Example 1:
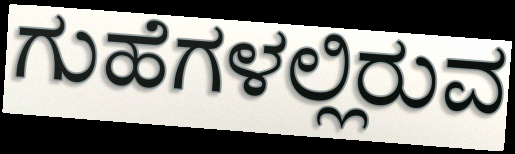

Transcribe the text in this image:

ಗುಹೆಗಳಲ್ಲಿರುವ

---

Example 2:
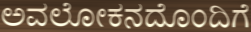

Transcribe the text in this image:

ಅವಲೋಕನದೊಂದಿಗೆ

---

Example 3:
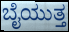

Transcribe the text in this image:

ಬೈಯುತ್ತ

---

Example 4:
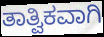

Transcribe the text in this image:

ತಾತ್ವಿಕವಾಗಿ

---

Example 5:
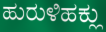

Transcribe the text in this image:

ಹುರುಳಿಹಕ್ಲು